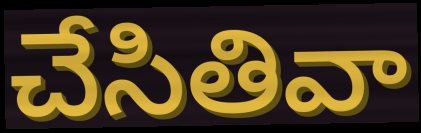
చేసితివా